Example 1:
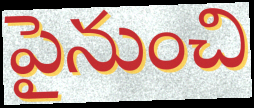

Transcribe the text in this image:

పైనుంచి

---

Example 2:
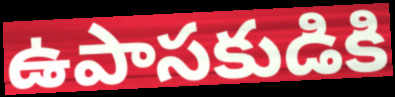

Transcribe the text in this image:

ఉపాసకుడికి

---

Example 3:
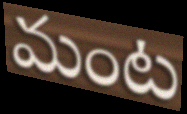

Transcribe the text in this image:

మంట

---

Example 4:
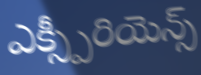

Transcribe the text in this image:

ఎక్స్పీరియెన్స్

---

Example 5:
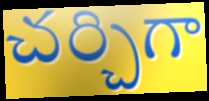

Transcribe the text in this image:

చర్చిగా